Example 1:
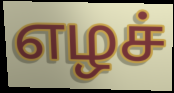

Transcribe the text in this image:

எழச்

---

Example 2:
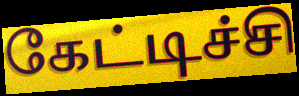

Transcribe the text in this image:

கேட்டிச்சி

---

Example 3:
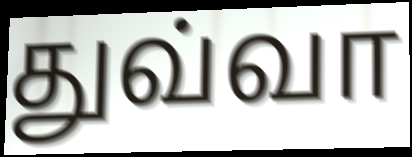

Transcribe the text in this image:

துவ்வா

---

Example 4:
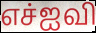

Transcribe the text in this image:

எச்ஐவி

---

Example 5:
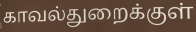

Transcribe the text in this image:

காவல்துறைக்குள்